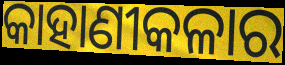
କାହାଣୀକଳାର